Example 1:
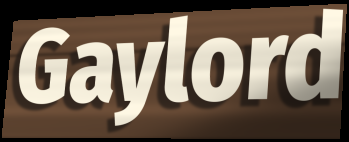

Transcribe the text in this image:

Gaylord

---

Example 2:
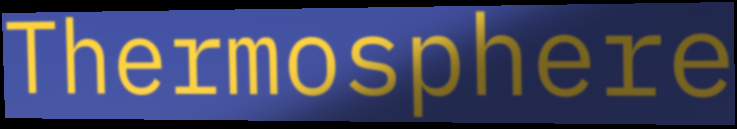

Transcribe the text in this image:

Thermosphere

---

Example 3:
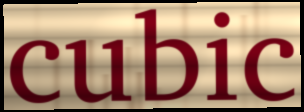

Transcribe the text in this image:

cubic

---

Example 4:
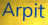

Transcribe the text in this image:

Arpit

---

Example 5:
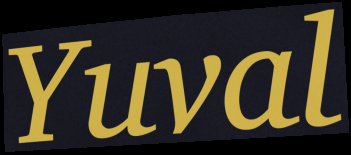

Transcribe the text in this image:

Yuval